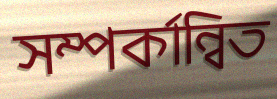
সম্পর্কান্বিত